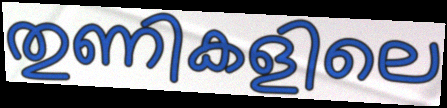
തുണികളിലെ